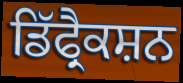
ਡਿੱਫ੍ਰੈਕਸ਼ਨ